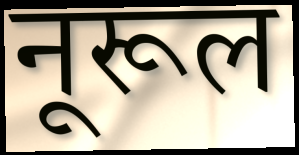
नूरूल